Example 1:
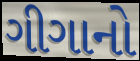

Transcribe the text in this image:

ગીગાનો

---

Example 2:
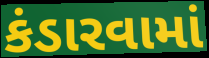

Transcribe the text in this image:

કંડારવામાં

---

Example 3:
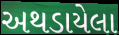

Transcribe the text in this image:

અથડાયેલા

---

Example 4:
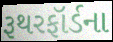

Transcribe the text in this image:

રૂથરફૉર્ડના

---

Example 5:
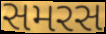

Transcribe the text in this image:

સમરસ